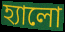
হ্যালো